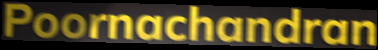
Poornachandran